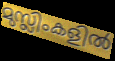
മുസ്ലിംകളിൽ